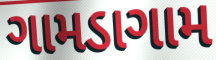
ગામડાગામ